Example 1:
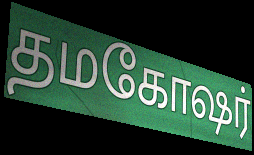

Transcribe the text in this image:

தமகோஷர்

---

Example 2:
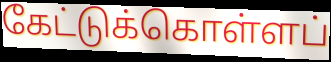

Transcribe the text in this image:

கேட்டுக்கொள்ளப்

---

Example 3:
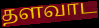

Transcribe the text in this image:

தளவாட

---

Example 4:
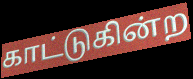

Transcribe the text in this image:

காட்டுகின்ற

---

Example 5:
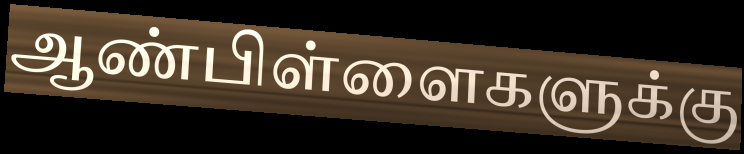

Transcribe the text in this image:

ஆண்பிள்ளைகளுக்கு